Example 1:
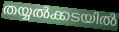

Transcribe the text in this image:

തയ്യൽക്കടയിൽ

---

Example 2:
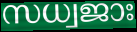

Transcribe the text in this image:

സധ്വജാഃ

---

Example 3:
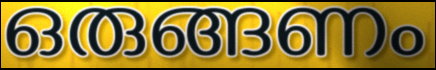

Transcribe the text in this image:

ഒരുങ്ങണം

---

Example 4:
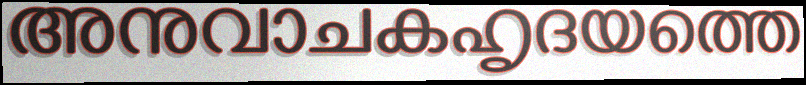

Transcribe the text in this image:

അനുവാചകഹൃദയത്തെ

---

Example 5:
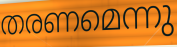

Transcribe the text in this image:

തരണമെന്നു